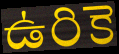
ఉరికె